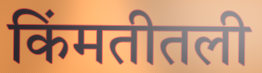
किंमतीतली